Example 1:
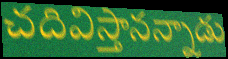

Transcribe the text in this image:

చదివిస్తానన్నాడు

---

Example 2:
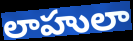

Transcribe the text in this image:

లాహులా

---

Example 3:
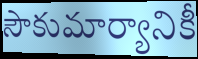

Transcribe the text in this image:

సౌకుమార్యానికీ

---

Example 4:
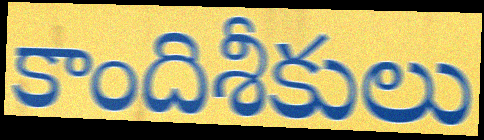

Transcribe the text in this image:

కాందిశీకులు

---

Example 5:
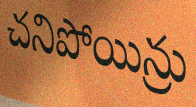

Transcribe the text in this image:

చనిపోయిన్రు